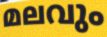
മലവും